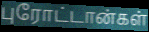
புரோட்டான்கள்